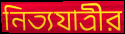
নিত্যযাত্রীর